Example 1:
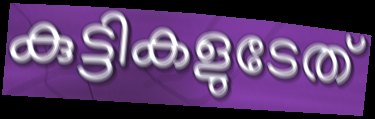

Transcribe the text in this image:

കുട്ടികളുടേത്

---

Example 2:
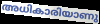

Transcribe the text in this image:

അധികാരിയാണു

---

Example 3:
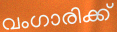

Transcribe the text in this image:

വംഗാരിക്ക്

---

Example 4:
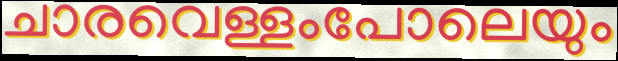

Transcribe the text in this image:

ചാരവെള്ളംപോലെയും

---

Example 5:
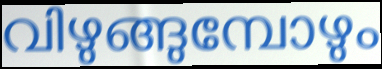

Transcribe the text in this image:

വിഴുങ്ങുമ്പോഴും